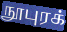
நூபுரக்